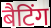
बैटिंग